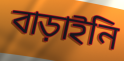
বাড়াইনি